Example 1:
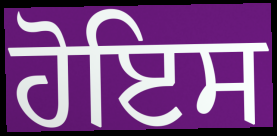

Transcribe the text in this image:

ਹੋਇਸ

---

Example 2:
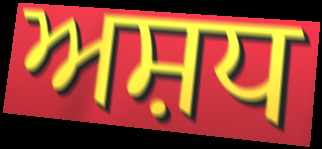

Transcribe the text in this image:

ਅਸ਼ਧ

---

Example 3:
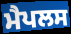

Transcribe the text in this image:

ਮੈਪਲਸ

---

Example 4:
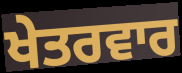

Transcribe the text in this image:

ਖੇਤਰਵਾਰ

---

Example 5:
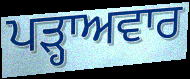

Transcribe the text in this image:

ਪੜ੍ਹਾਅਵਾਰ